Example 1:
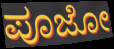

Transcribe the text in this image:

ಪೂಜೋ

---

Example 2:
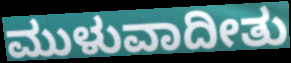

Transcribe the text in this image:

ಮುಳುವಾದೀತು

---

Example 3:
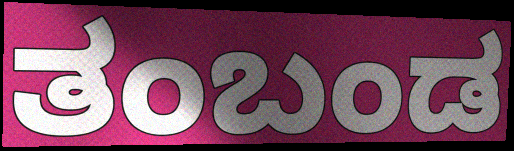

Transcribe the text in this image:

ತಂಬಂಡ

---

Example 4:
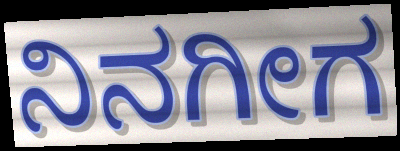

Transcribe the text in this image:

ನಿನಗೀಗ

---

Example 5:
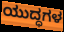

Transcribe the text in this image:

ಯುದ್ಧಗಳ